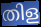
തിള